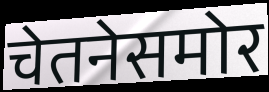
चेतनेसमोर